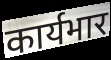
कार्यभार